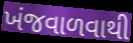
ખંજવાળવાથી